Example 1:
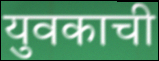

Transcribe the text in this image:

युवकाची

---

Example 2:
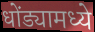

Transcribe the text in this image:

धोंड्यामध्ये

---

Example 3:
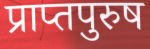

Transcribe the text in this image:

प्राप्तपुरुष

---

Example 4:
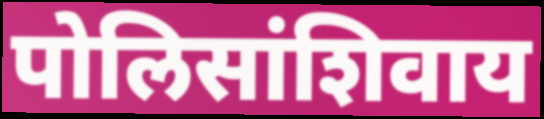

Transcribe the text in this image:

पोलिसांशिवाय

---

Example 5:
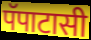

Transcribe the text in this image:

पॅपाटासी